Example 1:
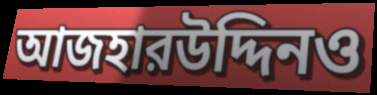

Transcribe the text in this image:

আজহারউদ্দিনও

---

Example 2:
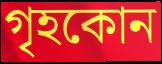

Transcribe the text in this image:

গৃহকোন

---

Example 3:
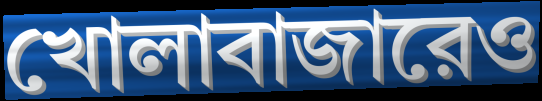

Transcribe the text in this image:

খোলাবাজারেও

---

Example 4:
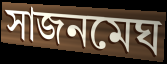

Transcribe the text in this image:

সাজনমেঘ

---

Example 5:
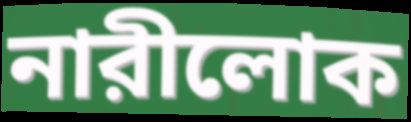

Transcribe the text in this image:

নারীলোক